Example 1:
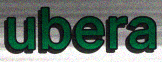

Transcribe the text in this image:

ubera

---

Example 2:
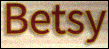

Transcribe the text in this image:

Betsy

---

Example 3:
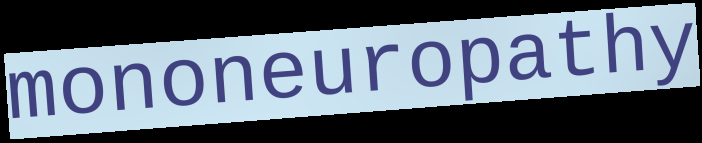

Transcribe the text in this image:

mononeuropathy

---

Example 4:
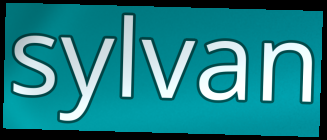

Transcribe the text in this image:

sylvan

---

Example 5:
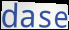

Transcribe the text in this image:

dase